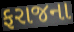
ફરાજના